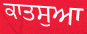
ਕਾਤਸੁਆ